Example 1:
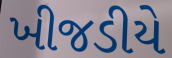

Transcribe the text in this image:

ખીજડીયે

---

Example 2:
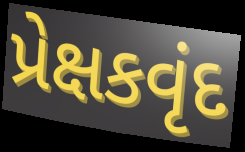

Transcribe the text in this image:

પ્રેક્ષકવૃંદ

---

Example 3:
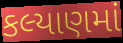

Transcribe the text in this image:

કલ્યાણમાં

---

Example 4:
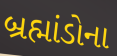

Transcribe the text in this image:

બ્રહ્માંડોના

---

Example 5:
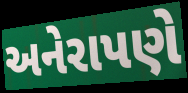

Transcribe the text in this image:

અનેરાપણે